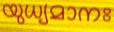
യുധ്യമാനഃ